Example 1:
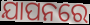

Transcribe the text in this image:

ଯାପନରେ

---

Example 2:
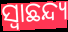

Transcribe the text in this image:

ସ୍ୱାଛନ୍ଦ୍ୟ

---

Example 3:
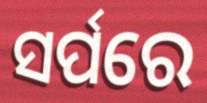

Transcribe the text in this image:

ସର୍ପରେ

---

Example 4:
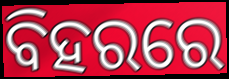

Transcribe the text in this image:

ବିହରରେ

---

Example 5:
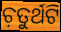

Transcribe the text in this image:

ଚ଼ତୁର୍ଥଟି